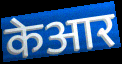
केआर